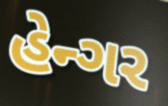
હેન્ગર